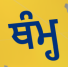
ਥੰਮ੍ਹ